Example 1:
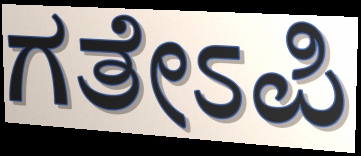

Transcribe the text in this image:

ಗತೇಽಪಿ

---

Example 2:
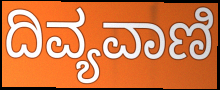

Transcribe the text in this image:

ದಿವ್ಯವಾಣಿ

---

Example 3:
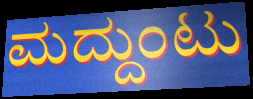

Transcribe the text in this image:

ಮದ್ದುಂಟು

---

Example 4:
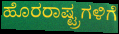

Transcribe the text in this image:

ಹೊರರಾಷ್ಟ್ರಗಳಿಗೆ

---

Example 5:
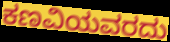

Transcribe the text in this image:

ಕಣವಿಯವರದು